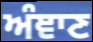
ਅੰਞਾਣ